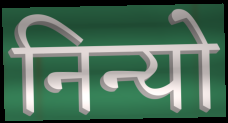
निन्यो